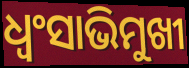
ଧ୍ଵଂସାଭିମୁଖୀ